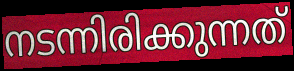
നടന്നിരിക്കുന്നത്